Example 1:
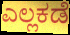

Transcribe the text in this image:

ಎಲ್ಲಕಡೆ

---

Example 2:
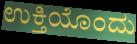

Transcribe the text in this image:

ಉಕ್ತಿಯೊಂದು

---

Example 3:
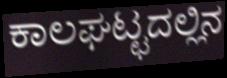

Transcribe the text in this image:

ಕಾಲಘಟ್ಟದಲ್ಲಿನ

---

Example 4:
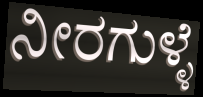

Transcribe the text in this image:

ನೀರಗುಳ್ಳೆ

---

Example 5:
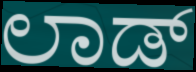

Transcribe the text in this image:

ಲಾಡ್